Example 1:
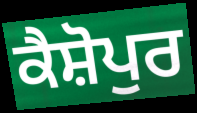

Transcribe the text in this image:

ਕੈਸ਼ੋਪੁਰ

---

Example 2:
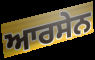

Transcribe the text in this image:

ਆਰਸੇਨ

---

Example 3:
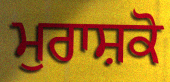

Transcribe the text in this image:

ਮੁਰਾਸ਼ਕੋ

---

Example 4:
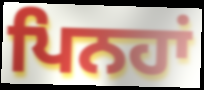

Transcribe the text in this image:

ਪਿਨਹਾਂ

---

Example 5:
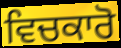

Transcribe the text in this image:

ਵਿਚਕਾਰੋ